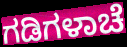
ಗಡಿಗಳಾಚೆ